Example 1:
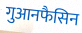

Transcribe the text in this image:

गुआनफैसिन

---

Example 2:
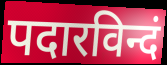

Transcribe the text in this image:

पदारविन्दं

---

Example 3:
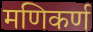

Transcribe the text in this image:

मणिकर्ण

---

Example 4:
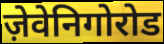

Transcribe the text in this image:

ज़ेवेनिगोरोड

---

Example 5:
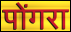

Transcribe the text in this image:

पोंगरा